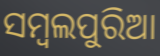
ସମ୍ୱଲପୁରିଆ